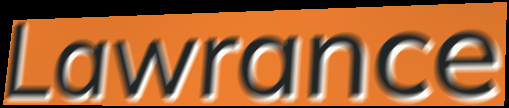
Lawrance